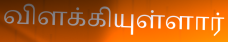
விளக்கியுள்ளார்